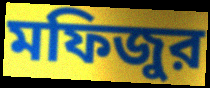
মফিজুর